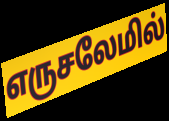
எருசலேமில்